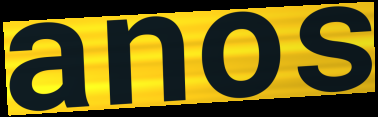
anos